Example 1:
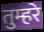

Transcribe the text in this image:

तुम्हरे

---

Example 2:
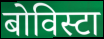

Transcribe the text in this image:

बोविस्टा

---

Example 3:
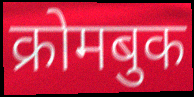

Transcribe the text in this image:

क्रोमबुक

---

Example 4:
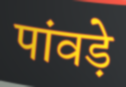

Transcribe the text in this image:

पांवड़े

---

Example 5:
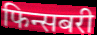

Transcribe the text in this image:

फिन्सबरी